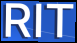
RIT